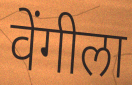
वेंगीला